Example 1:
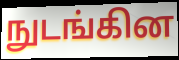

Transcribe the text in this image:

நுடங்கின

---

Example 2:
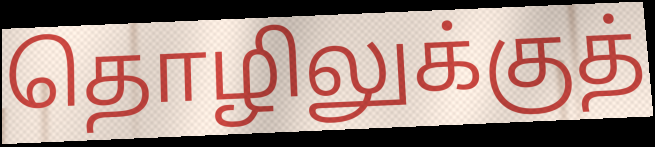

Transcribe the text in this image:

தொழிலுக்குத்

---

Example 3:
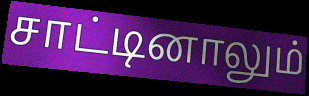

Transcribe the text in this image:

சாட்டினாலும்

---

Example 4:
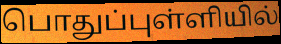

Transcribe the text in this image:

பொதுப்புள்ளியில்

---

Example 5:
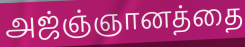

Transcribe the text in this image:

அஜ்ஞ்ஞானத்தை